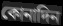
কোনাদিন